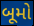
બૂમો